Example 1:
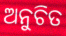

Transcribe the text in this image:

ଅନୁଚିତ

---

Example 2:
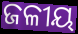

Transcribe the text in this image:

ଜଳୀୟ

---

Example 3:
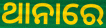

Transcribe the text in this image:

ଥାନାରେ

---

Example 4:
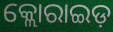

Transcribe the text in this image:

କ୍ଲୋରାଇଡ଼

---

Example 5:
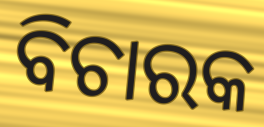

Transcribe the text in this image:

ବିଚାରକ